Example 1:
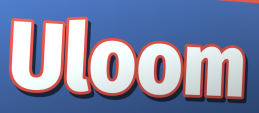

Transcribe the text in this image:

Uloom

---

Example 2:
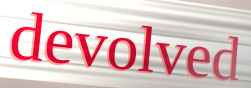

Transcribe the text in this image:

devolved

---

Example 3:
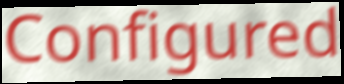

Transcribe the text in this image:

Configured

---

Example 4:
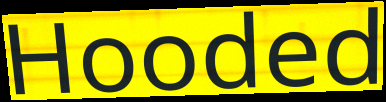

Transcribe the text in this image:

Hooded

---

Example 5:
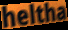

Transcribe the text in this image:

heltha